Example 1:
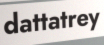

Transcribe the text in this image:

dattatrey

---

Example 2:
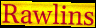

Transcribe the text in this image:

Rawlins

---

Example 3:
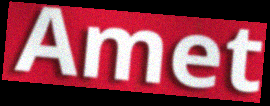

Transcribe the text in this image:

Amet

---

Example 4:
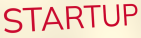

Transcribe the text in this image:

STARTUP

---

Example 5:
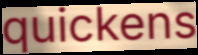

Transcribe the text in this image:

quickens